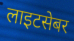
लाइटसेबर